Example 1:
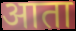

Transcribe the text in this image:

आता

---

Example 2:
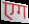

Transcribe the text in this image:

एग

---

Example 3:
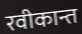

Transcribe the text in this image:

रवीकान्त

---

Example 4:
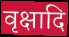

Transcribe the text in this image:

वृक्षादि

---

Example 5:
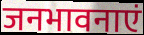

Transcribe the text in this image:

जनभावनाएं